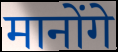
मानोंगे